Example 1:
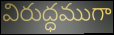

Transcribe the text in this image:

విరుద్ధముగా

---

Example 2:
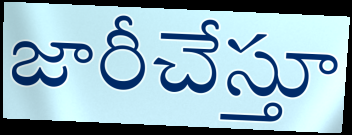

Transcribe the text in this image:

జారీచేస్తూ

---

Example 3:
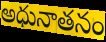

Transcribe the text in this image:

అధునాతనం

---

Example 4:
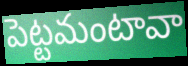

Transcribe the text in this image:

పెట్టమంటావా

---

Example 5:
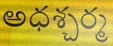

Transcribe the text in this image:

అధశ్చర్మ